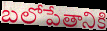
బలోపేతానికి